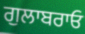
ਗੁਲਾਬਰਾਓ